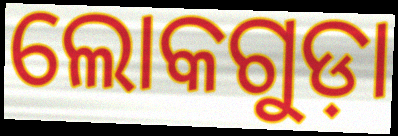
ଲୋକଗୁଡ଼ା